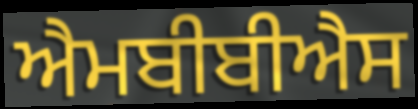
ਐਮਬੀਬੀਐਸ